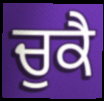
ਚੁਕੈ